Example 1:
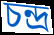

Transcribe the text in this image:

চন্দ্র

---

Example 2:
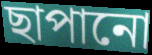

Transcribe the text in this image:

ছাপানো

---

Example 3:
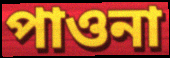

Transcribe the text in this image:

পাওনা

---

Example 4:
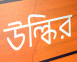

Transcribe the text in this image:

উল্কির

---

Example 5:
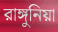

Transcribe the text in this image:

রাঙ্গুনিয়া